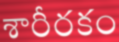
శారీరకం